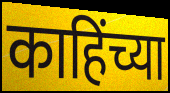
काहिंच्या